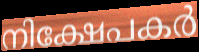
നിക്ഷേപകർ